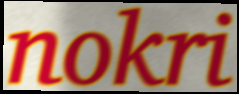
nokri